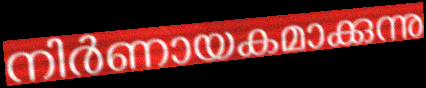
നിർണായകമാക്കുന്നു